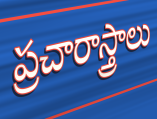
ప్రచారాస్త్రాలు